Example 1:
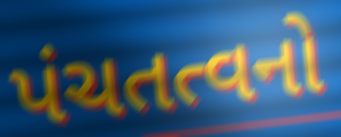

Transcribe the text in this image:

પંચતત્વનો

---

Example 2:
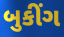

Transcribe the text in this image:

બુકીંગ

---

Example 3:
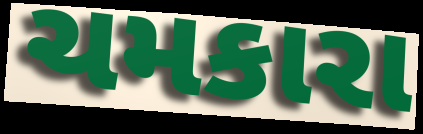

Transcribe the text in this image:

ચમકારા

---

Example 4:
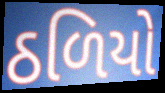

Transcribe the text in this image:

ઠળિયો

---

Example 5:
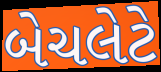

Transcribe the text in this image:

બેચલેટે